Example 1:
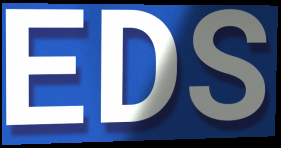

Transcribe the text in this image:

EDS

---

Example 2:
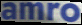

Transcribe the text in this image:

amro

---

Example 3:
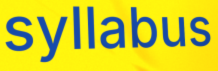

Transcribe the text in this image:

syllabus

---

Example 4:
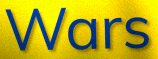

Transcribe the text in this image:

Wars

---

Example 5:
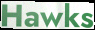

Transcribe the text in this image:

Hawks